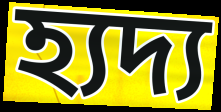
হ্যদ্য